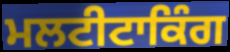
ਮਲਟੀਟਾਕਿੰਗ